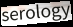
serology